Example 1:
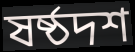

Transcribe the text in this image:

ষষ্ঠদশ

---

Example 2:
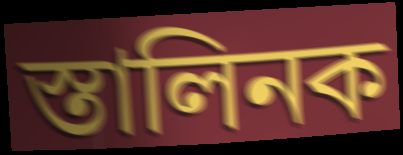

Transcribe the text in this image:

স্তালিনক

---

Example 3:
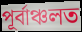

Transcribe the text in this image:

পূৰ্বাঞ্চলত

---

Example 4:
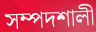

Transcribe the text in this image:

সম্পদশালী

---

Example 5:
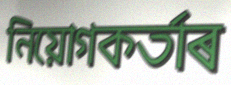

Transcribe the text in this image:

নিয়োগকৰ্তাৰ